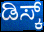
ಡಿಸ್ಕ್